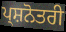
ਪ੍ਸ਼ਨੋਤਰੀ